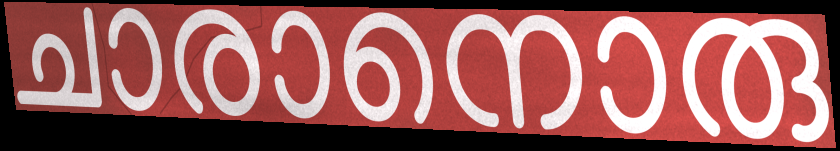
ചാരാനൊരു